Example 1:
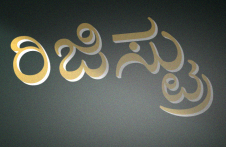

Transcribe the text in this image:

ರಿಜಿಸ್ಟ್ರು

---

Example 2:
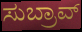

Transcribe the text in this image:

ಸುಬ್ರಾವ್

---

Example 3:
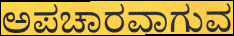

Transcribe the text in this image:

ಅಪಚಾರವಾಗುವ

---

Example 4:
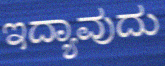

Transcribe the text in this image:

ಇದ್ಯಾವುದು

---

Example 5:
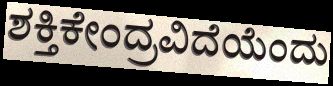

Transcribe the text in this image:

ಶಕ್ತಿಕೇಂದ್ರವಿದೆಯೆಂದು